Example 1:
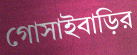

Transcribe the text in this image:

গোসাইবাড়ির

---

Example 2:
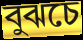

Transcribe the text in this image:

বুঝচে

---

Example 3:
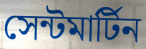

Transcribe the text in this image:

সেন্টমার্টিন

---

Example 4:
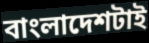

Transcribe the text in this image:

বাংলাদেশটাই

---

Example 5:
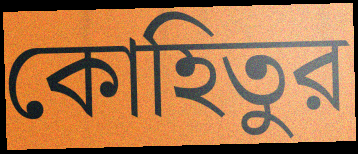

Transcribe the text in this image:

কোহিতুর